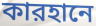
কারহানে